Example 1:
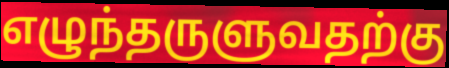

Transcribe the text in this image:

எழுந்தருளுவதற்கு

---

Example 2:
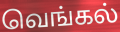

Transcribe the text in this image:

வெங்கல்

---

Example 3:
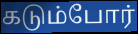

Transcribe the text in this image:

கடும்போர்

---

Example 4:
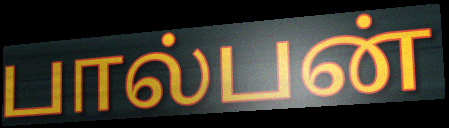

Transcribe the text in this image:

பால்பன்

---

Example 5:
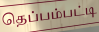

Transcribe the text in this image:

தெப்பம்பட்டி